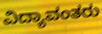
ವಿದ್ಯಾವಂತರು